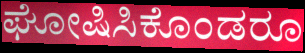
ಘೋಷಿಸಿಕೊಂಡರೂ